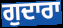
ਗੁਦਾਰਾ